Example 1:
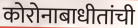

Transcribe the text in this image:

कोरोनाबाधीतांची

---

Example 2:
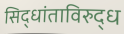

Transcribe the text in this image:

सिद्धांताविरुद्ध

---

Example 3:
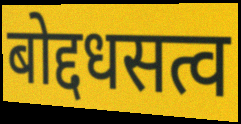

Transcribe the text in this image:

बोद्दधसत्व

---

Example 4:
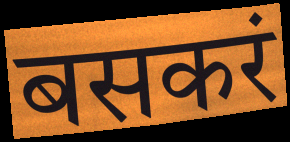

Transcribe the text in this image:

बसकरं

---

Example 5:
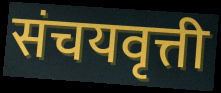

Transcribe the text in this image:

संचयवृत्ती